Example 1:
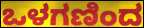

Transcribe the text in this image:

ಒಳಗಣಿಂದ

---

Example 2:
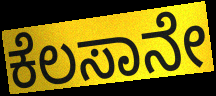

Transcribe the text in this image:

ಕೆಲಸಾನೇ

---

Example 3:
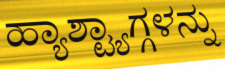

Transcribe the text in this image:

ಹ್ಯಾಶ್ಟ್ಯಾಗ್ಗಳನ್ನು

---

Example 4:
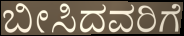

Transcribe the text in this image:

ಬೀಸಿದವರಿಗೆ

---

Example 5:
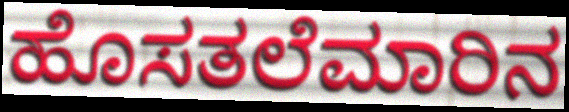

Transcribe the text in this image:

ಹೊಸತಲೆಮಾರಿನ